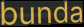
bunda